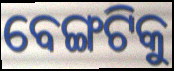
ବେଙ୍ଗଟିକୁ